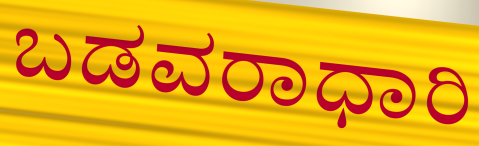
ಬಡವರಾಧಾರಿ